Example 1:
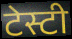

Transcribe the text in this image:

टेस्‍टी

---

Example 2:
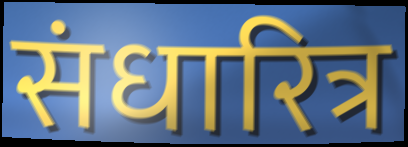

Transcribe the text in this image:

संधारित्र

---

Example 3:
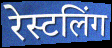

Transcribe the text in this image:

रेस्टलिंग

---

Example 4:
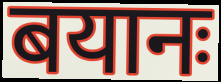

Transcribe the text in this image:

बयानः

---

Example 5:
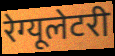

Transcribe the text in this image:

रेग्यूलेटरी